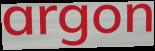
argon